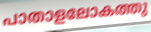
പാതാളലോകത്തു